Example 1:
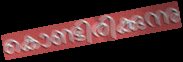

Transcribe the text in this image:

കൊണ്ടിരിക്കുന്നു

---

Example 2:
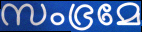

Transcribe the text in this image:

സംഭ്രമേ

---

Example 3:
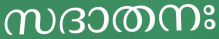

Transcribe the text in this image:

സദാതനഃ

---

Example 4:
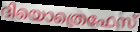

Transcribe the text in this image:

ദിയൊത്രെഫേസ്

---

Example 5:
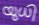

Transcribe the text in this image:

യുധി